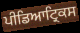
ਪੀਡਿਆਟ੍ਰਿਕਸ